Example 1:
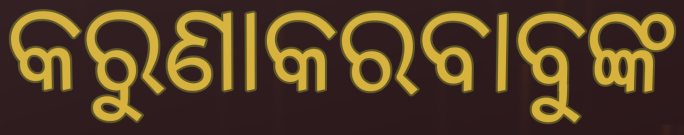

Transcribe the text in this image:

କରୁଣାକରବାବୁଙ୍କ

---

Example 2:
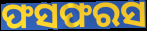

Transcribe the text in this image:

ଫସଫରସ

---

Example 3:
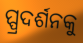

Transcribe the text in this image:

ପ୍ପ୍ରଦର୍ଶନକୁ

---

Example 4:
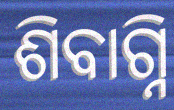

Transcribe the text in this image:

ଶିବାଗ୍ନି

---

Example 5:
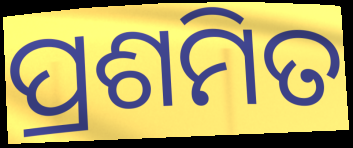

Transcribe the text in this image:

ପ୍ରଶମିତ